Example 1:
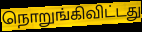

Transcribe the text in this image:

நொறுங்கிவிட்டது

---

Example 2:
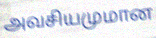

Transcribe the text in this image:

அவசியமுமான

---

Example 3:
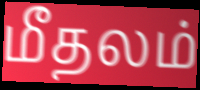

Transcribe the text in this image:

மீதலம்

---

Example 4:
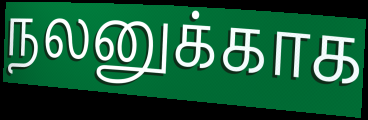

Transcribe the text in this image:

நலனுக்காக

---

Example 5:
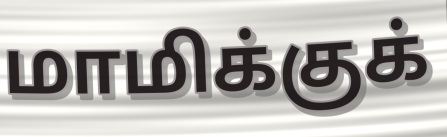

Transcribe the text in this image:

மாமிக்குக்